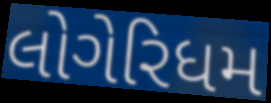
લોગેરિધમ